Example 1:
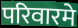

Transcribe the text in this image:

परिवारमे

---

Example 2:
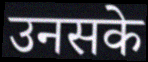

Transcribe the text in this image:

उनसके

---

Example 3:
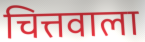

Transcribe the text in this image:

चित्तवाला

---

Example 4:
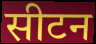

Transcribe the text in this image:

सीटन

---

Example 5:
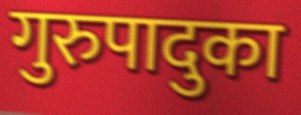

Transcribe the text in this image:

गुरुपादुका